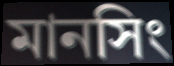
মানসিং